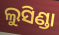
ଲୁସିଣ୍ଡା